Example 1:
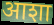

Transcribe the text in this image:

आशा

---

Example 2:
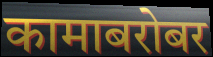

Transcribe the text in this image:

कामाबरोबर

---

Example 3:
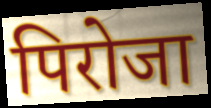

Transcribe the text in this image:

पिरोजा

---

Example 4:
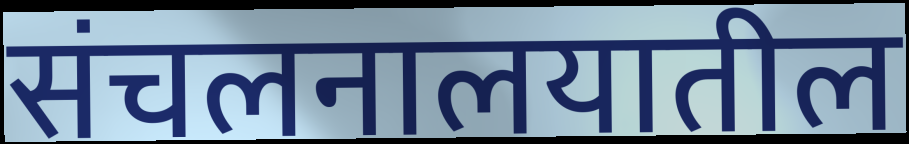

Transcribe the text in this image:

संचलनालयातील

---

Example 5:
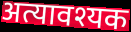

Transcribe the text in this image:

अत्यावश्यक